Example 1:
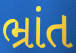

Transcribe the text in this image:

ભ્રાંત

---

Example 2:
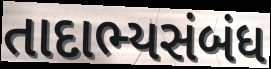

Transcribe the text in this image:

તાદાભ્યસંબંધ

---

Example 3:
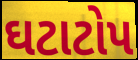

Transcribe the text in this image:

ઘટાટોપ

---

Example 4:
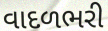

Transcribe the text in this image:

વાદળભરી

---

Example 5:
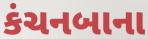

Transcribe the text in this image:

કંચનબાના